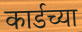
कार्डच्या